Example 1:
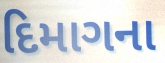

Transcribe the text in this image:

દિમાગના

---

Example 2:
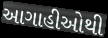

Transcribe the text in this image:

આગાહીઓથી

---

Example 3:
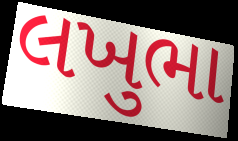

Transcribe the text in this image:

લખુભા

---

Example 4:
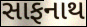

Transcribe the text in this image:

સાફનાથ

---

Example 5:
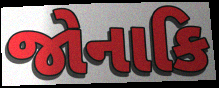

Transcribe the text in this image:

જોનાકિ